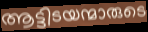
ആട്ടിടയന്മാരുടെ